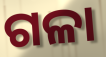
ଗଳା